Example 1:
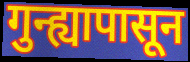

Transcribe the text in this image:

गुन्ह्यापासून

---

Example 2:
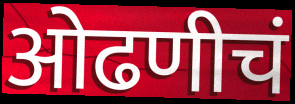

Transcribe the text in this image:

ओढणीचं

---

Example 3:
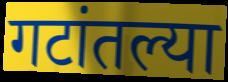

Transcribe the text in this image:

गटांतल्या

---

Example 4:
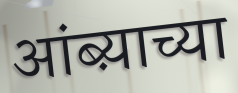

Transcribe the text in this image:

आंब्य़ाच्या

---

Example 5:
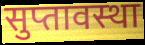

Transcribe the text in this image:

सुप्तावस्था